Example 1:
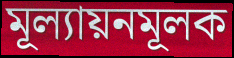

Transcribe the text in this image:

মূল্যায়নমূলক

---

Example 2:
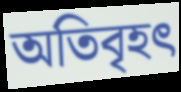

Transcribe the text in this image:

অতিবৃহৎ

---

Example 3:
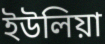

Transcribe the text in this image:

ইউলিয়া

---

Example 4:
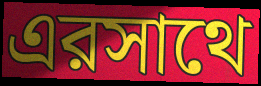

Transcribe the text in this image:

এরসাথে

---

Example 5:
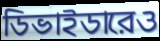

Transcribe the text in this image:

ডিভাইডারেও